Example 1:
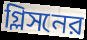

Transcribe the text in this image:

গ্লিসনের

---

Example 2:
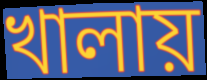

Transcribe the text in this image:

খালায়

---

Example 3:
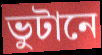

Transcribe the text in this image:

ভুটানে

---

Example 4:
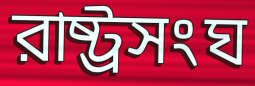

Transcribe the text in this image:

রাষ্ট্রসংঘ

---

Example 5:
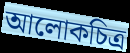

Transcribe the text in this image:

আলোকচিত্র